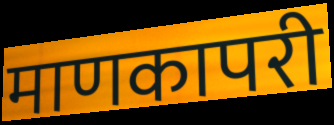
माणकापरी